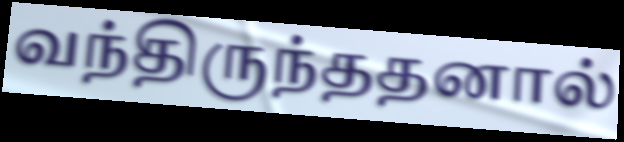
வந்திருந்ததனால்